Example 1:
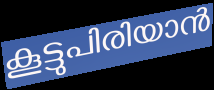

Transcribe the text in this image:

കൂട്ടുപിരിയാൻ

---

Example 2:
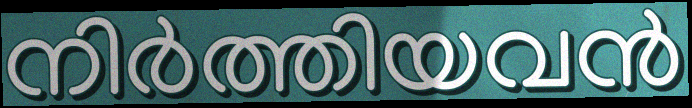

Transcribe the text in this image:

നിർത്തിയവൻ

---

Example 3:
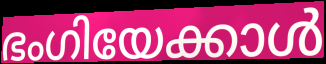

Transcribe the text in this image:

ഭംഗിയേക്കാൾ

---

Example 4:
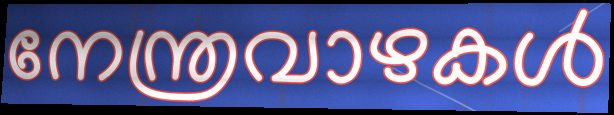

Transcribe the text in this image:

നേന്ത്രവാഴകൾ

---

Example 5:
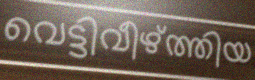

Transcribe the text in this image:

വെട്ടിവീഴ്ത്തിയ